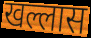
खल्लास